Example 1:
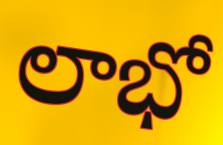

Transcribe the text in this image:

లాభో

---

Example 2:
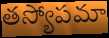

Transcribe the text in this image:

తస్యోపమా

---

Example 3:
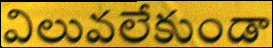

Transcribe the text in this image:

విలువలేకుండా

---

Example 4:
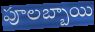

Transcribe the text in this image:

పూలబ్బాయి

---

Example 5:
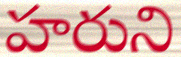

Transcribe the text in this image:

హరుని